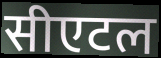
सीएटल